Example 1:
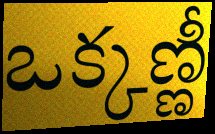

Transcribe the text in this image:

ఒక్కణ్ణీ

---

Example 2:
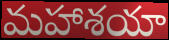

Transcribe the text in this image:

మహాశయా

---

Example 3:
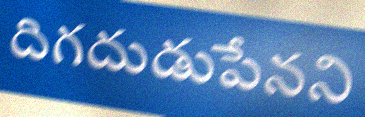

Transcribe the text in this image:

దిగదుడుపేనని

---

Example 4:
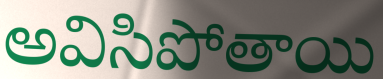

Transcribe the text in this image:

అవిసిపోతాయి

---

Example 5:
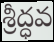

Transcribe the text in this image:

శ్రీద్ధవ